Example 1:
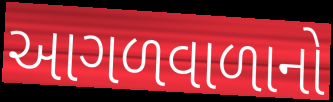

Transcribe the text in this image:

આગળવાળાનો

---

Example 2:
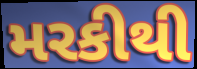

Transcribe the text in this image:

મરકીથી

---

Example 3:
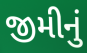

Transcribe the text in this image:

જીમીનું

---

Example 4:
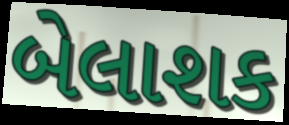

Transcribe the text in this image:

બેલાશક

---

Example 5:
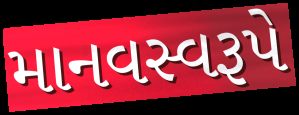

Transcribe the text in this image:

માનવસ્વરૂપે